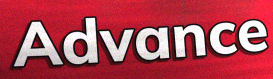
Advance